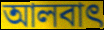
আলবাৎ